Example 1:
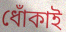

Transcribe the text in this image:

ধোঁকাই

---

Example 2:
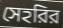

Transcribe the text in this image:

সেহরির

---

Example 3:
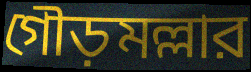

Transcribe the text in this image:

গৌড়মল্লার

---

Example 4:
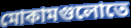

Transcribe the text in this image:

মোকামগুলোতে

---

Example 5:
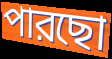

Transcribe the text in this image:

পারছো